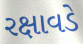
રક્ષાવડે